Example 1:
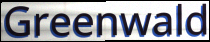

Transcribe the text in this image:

Greenwald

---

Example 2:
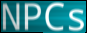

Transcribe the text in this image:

NPCs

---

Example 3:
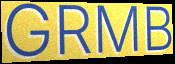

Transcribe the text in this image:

GRMB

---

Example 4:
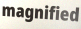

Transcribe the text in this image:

magnified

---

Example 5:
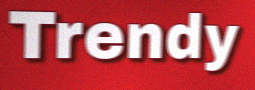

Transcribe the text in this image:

Trendy